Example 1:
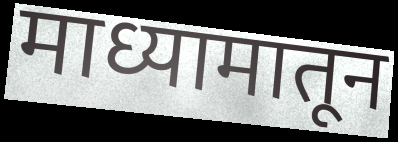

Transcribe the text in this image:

माध्यामातून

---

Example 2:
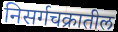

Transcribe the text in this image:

निसर्गचक्रातील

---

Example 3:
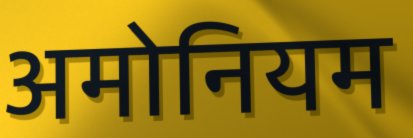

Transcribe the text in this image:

अमोनियम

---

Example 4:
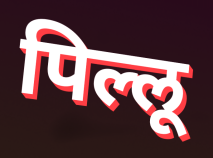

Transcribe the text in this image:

पिल्लू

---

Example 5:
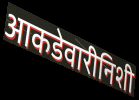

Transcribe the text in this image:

आकडेवारीनिशी